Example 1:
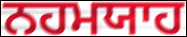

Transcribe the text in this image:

ਨਹਮਯਾਹ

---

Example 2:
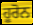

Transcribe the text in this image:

ਹੂਰੋਨ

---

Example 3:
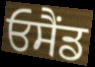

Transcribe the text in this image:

ਓਸੈਂਡ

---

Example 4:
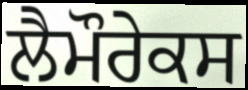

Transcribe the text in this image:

ਲੈਮੌਰੇਕਸ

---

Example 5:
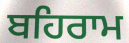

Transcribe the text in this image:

ਬਹਿਰਾਮ